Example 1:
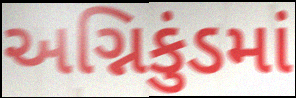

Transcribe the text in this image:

અગ્નિકુંડમાં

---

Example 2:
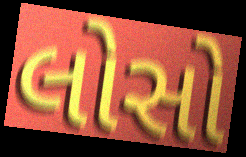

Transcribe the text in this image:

લોસો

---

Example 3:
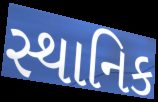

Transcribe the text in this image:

સ્થાનિક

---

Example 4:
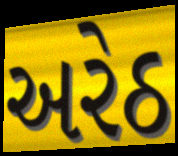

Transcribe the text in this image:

અરેઠ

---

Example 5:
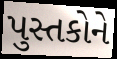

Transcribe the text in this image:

પુસ્તકોને